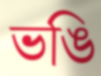
ভঙি